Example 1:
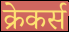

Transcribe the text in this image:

क्रेकर्स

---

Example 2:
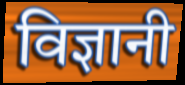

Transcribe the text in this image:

विज्ञानी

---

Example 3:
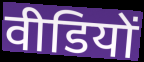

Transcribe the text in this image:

वीडियों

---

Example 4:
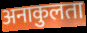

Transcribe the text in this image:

अनाकुलता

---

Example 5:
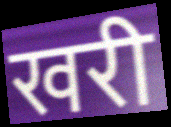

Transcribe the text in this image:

खरी